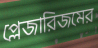
প্লেজারিজমের